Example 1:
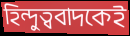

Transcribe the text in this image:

হিন্দুত্ববাদকেই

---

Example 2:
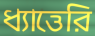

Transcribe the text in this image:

ধ্যাত্তেরি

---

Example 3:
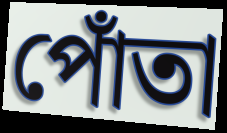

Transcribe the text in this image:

পোঁতা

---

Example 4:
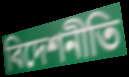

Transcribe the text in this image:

বিদেশনীতি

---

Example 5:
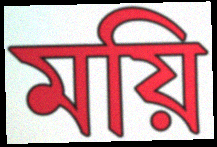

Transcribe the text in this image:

ময়ি